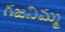
గజనిమ్మ